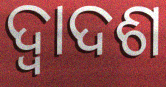
ଦ୍ବାଦଶ